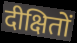
दीक्षितों